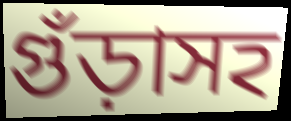
গুঁড়াসহ